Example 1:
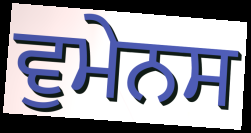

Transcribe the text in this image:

ਵੁਮੇਨਸ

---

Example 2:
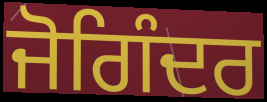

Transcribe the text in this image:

ਜੋਗਿੰਦਰ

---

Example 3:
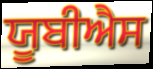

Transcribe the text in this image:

ਯੂਬੀਐਸ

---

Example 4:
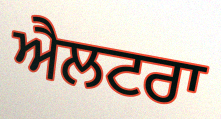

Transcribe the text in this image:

ਐਲਟਰਾ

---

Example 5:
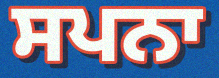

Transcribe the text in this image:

ਸਪਨਾ